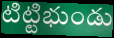
టిట్టిభుండు